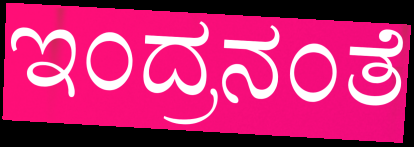
ಇಂದ್ರನಂತೆ